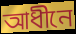
আধীনে